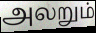
அலறும்